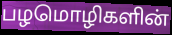
பழமொழிகளின்